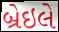
બ્રેઇલે